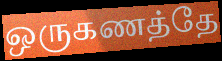
ஒருகணத்தே